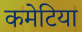
कमेटिया